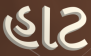
હાટ